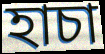
হাচা